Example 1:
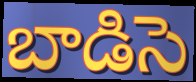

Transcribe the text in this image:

బాడిసె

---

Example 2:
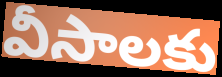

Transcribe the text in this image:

వీసాలకు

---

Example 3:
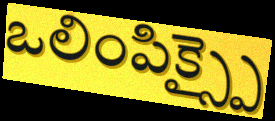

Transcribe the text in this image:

ఒలింపిక్స్పై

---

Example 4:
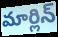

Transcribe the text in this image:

మార్లిన్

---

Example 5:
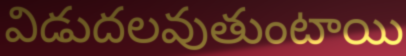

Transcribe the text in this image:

విడుదలవుతుంటాయి